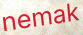
nemak